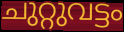
ചുറ്റുവട്ടം